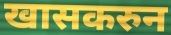
खासकरुन